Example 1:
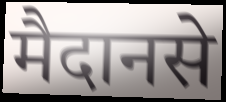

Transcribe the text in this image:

मैदानसे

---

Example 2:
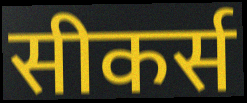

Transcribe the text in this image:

सीकर्स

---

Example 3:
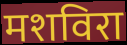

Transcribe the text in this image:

मशविरा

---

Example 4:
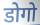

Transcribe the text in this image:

डोगो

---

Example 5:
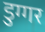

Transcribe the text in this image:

डुग्गर